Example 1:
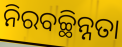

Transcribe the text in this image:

ନିରବଚ୍ଛିନ୍ନତା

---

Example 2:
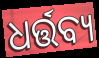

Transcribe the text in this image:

ଧର୍ତ୍ତବ୍ୟ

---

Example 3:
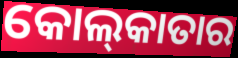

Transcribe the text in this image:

କୋଲ୍‍କାତାର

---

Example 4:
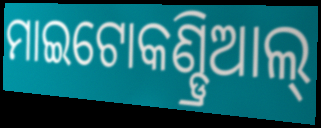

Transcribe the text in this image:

ମାଇଟୋକଣ୍ଡ୍ରିଆଲ୍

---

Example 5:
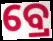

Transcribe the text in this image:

ବ୍ରେ